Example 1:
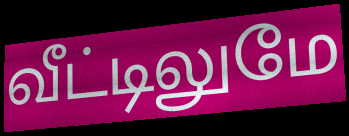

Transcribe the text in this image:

வீட்டிலுமே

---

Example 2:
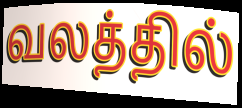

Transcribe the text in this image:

வலத்தில்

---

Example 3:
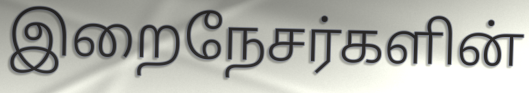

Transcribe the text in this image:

இறைநேசர்களின்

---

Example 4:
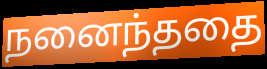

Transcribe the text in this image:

நனைந்ததை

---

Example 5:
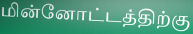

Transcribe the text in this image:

மின்னோட்டத்திற்கு